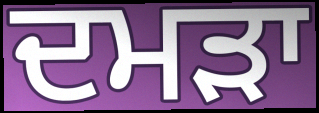
ਦਮੜਾ